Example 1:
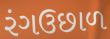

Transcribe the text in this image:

રંગઉછાળ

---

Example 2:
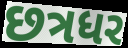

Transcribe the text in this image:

છત્રધર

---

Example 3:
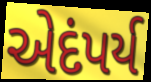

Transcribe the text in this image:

એદંપર્ય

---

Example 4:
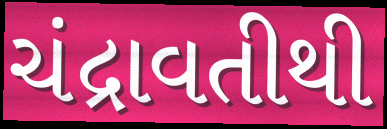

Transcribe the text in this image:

ચંદ્રાવતીથી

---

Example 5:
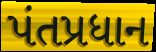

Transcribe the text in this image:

પંતપ્રધાન